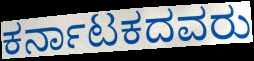
ಕರ್ನಾಟಕದವರು